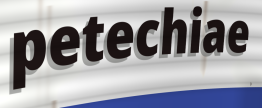
petechiae